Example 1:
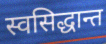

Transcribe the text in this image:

स्वसिद्धान्त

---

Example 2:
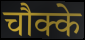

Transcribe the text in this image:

चौक्के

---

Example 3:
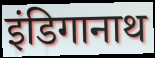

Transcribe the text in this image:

इंडिगानाथ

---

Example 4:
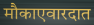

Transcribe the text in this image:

मौकाएवारदात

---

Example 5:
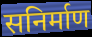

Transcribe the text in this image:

सनिर्माण